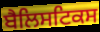
ਬੈਲਿਸਟਿਕਸ